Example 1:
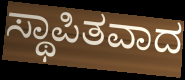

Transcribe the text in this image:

ಸ್ಥಾಪಿತವಾದ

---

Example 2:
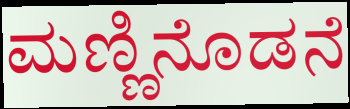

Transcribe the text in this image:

ಮಣ್ಣಿನೊಡನೆ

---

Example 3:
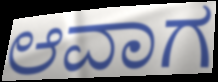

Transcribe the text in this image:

ಆವಾಗ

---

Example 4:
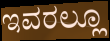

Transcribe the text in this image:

ಇವರಲ್ಲೂ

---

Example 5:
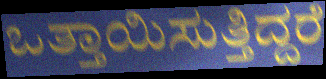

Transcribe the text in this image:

ಒತ್ತಾಯಿಸುತ್ತಿದ್ದರೆ